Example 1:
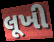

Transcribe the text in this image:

લૂખી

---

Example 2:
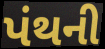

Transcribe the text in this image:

પંથની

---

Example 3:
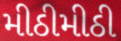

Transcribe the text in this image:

મીઠીમીઠી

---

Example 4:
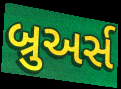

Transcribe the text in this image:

બ્રુઅર્સ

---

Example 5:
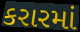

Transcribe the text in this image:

કરારમાં